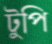
টুপি